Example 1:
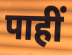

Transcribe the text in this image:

पाहीं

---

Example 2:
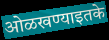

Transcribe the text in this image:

ओळखण्याइतके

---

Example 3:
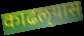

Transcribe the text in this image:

काढल्यास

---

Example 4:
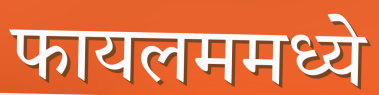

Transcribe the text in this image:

फायलममध्ये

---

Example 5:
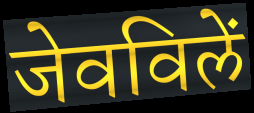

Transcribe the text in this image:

जेवविलें